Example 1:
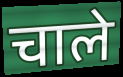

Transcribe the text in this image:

चाले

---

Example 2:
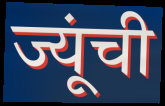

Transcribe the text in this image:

ज्यूंची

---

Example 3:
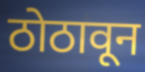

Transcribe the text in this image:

ठोठावून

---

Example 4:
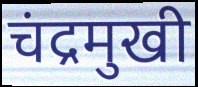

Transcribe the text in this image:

चंद्रमुखी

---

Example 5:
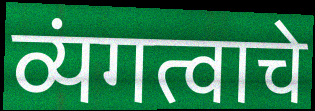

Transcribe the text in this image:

व्यंगत्वाचे